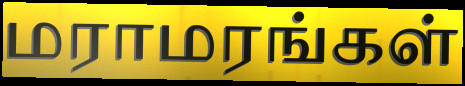
மராமரங்கள்